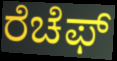
ರೆಚೆಫ್